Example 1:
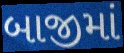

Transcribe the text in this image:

બાજીમાં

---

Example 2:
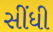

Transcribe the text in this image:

સીંધી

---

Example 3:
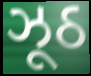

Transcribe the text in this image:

ઝૂઠ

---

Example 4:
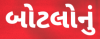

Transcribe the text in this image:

બોટલોનું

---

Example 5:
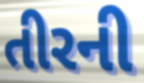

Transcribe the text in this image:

તીરની